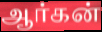
ஆர்கன்